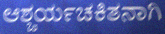
ಆಶ್ಚರ್ಯಚಕಿತನಾಗಿ